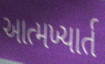
આત્મખ્યાર્ત